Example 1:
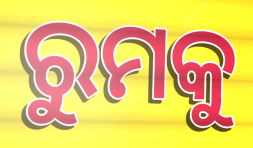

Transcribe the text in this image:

ରୁମକୁ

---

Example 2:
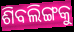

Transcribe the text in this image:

ଶିବଲିଙ୍ଗକୁ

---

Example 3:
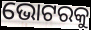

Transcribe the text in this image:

ଭୋଟରକୁ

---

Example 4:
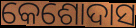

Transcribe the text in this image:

କେଶୋଦାସ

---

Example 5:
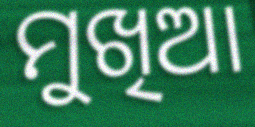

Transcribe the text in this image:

ମୁଖିଆ